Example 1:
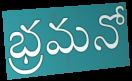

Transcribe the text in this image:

భ్రమనో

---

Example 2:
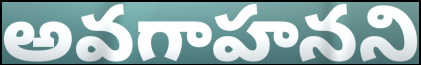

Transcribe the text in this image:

అవగాహనని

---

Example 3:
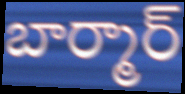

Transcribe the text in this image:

బార్మార్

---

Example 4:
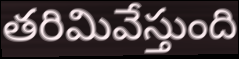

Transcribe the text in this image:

తరిమివేస్తుంది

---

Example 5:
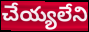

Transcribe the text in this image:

చేయ్యలేని